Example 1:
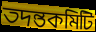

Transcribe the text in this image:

তদন্তকমিটি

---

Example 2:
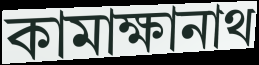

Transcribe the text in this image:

কামাক্ষানাথ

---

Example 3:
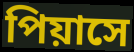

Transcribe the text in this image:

পিয়াসে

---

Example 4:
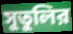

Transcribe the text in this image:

সুতুলির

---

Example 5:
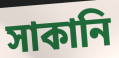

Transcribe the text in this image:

সাকানি